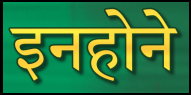
इनहोने